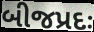
બીજપ્રદઃ